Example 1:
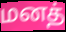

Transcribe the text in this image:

மனத்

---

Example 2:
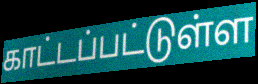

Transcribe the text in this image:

காட்டப்பட்டுள்ள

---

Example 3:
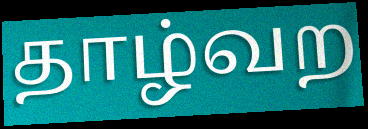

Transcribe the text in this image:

தாழ்வற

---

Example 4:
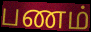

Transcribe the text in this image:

பணம்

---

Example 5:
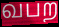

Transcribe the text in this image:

வபற